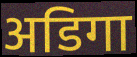
अडिगा